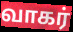
வாகர்